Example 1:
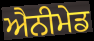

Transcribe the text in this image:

ਐਨੀਮੇਡ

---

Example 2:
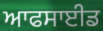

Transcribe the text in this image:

ਆਫਸਾਈਡ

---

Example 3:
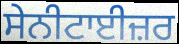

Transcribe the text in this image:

ਸੇਨੀਟਾਈਜ਼ਰ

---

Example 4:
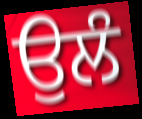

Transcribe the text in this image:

ਉਲੰ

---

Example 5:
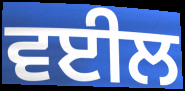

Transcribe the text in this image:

ਵਈਲ